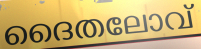
ദൈതലോവ്